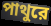
পাথুরে